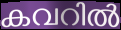
കവറിൽ